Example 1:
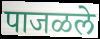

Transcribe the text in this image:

पाजळले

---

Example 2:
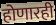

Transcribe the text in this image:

होणारही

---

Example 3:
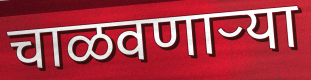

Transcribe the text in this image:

चाळवणाऱ्या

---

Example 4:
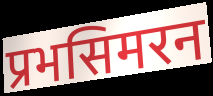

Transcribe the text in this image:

प्रभसिमरन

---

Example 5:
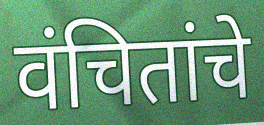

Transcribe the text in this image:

वंचितांचे